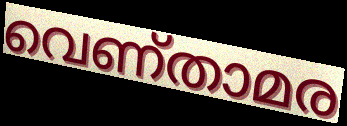
വെണ്താമര